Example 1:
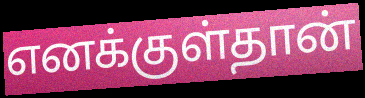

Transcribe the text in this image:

எனக்குள்தான்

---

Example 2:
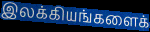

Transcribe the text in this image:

இலக்கியங்களைக்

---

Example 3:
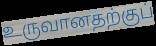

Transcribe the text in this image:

உருவானதற்குப்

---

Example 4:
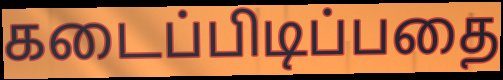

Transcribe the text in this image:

கடைப்பிடிப்பதை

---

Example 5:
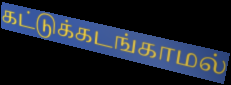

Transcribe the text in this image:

கட்டுக்கடங்காமல்